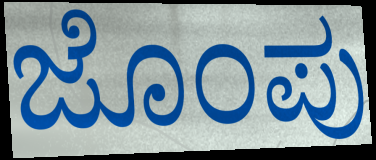
ಜೊಂಪು